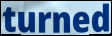
turned